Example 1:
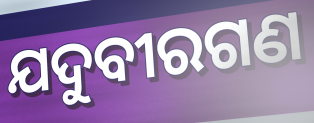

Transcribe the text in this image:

ଯଦୁବୀରଗଣ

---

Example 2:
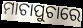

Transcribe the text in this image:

ମାଚାପୁଚାରେ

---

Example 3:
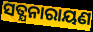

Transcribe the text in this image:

ସତ୍ଯନାରାୟଣ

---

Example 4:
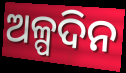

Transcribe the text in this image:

ଅଳ୍ପଦିନ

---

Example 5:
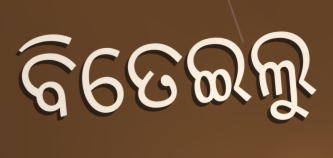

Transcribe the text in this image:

ବିତେଇଲୁ